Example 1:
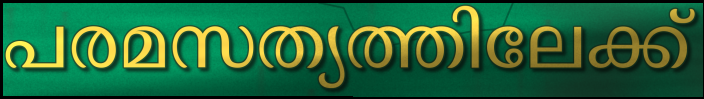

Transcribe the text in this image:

പരമസത്യത്തിലേക്ക്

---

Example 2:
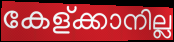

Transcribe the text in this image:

കേള്ക്കാനില്ല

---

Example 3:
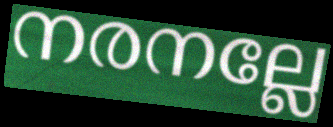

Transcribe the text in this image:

നരനല്ലേ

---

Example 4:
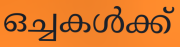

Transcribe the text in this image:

ഒച്ചകൾക്ക്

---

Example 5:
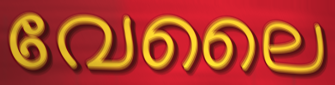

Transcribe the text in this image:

വേലൈ